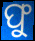
ଫୁ